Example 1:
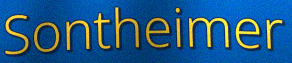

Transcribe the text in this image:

Sontheimer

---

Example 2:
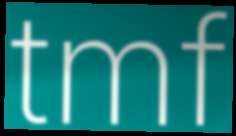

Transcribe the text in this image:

tmf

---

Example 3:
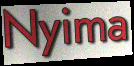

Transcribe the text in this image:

Nyima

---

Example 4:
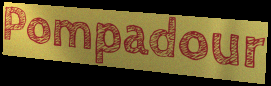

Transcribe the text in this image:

Pompadour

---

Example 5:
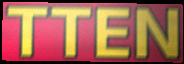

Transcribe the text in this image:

TTEN